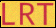
LRT